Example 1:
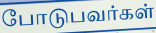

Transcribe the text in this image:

போடுபவர்கள்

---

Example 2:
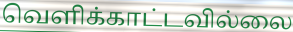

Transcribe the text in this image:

வெளிக்காட்டவில்லை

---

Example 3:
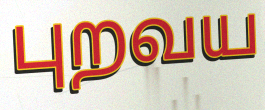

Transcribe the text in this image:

புறவய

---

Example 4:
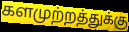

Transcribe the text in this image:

களமுற்றத்துக்கு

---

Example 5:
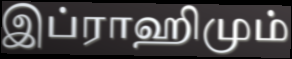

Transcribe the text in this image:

இப்ராஹிமும்